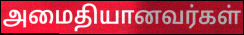
அமைதியானவர்கள்